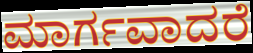
ಮಾರ್ಗವಾದರೆ